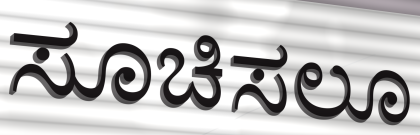
ಸೂಚಿಸಲೂ